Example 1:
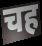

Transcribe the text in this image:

चह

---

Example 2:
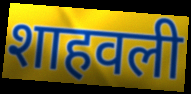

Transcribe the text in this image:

शाहवली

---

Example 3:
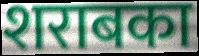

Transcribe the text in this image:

शराबका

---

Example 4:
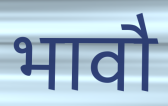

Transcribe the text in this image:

भावौ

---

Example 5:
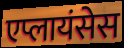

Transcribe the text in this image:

एप्लायंसेस